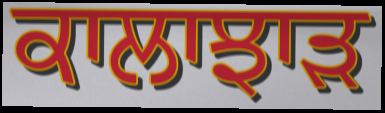
ਕਾਲਾਝਾਡ਼